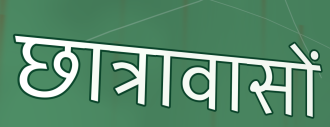
छात्रावासों